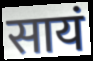
सायं